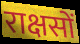
राक्षसों